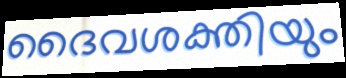
ദൈവശക്തിയും